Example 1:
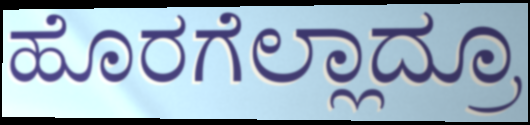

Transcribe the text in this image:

ಹೊರಗೆಲ್ಲಾದ್ರೂ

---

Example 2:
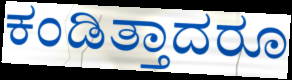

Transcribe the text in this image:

ಕಂಡಿತ್ತಾದರೂ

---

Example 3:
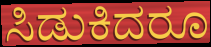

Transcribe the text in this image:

ಸಿಡುಕಿದರೂ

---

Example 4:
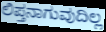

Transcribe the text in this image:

ಲಿಪ್ತನಾಗುವುದಿಲ್ಲ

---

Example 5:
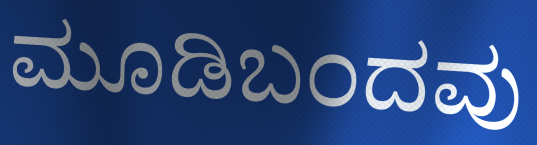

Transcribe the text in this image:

ಮೂಡಿಬಂದವು